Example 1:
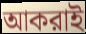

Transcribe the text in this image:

আকরাই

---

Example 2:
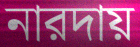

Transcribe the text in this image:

নারদায়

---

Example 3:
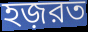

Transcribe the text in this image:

হজ়রত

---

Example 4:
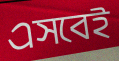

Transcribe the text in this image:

এসবেই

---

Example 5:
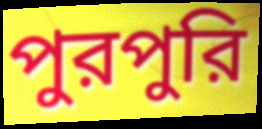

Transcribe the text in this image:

পুরপুরি